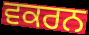
ਵਕਰਨ